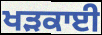
ਖੜਕਾਈ